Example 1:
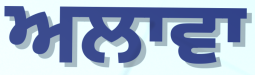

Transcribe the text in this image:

ਅਲਾਵਾ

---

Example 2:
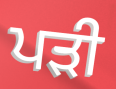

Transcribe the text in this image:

ਪਡ਼ੀ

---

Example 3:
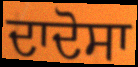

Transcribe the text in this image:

ਦਾਦੋਸਾ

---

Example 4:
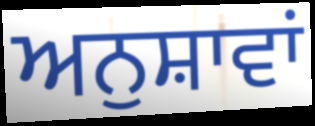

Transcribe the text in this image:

ਅਨੁਸ਼ਾਵਾਂ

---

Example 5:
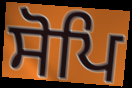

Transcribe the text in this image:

ਸੋਪਿ